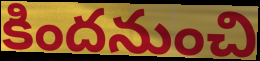
కిందనుంచి